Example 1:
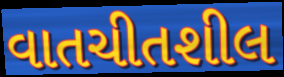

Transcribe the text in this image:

વાતચીતશીલ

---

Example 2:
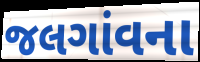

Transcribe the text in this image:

જલગાંવના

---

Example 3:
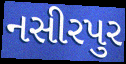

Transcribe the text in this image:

નસીરપુર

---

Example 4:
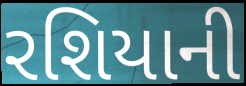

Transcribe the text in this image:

રશિયાની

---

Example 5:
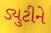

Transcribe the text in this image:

ડ્યુટીને